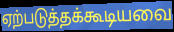
ஏற்படுத்தக்கூடியவை